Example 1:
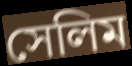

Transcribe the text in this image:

সেলিম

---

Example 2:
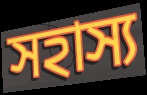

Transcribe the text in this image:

সহাস্য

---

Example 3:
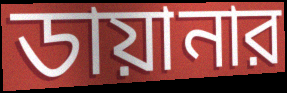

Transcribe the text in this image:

ডায়ানার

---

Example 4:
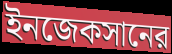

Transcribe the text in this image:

ইনজেকসানের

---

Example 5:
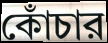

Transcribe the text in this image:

কোঁচার